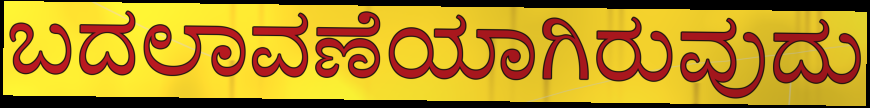
ಬದಲಾವಣೆಯಾಗಿರುವುದು